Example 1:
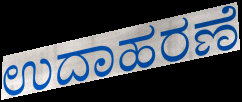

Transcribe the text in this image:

ಉದಾಹರಣೆ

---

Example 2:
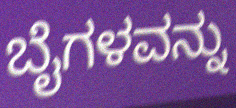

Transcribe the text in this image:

ಬೈಗಳವನ್ನು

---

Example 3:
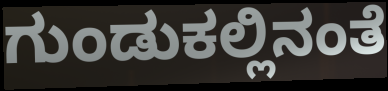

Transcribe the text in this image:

ಗುಂಡುಕಲ್ಲಿನಂತೆ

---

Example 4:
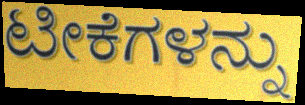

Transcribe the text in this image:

ಟೀಕೆಗಳನ್ನು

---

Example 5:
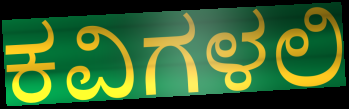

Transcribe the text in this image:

ಕವಿಗಳಲಿ